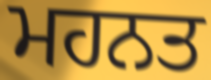
ਮਹਨਤ